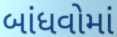
બાંધવોમાં